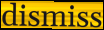
dismiss